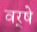
वर्षे